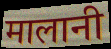
मालानी